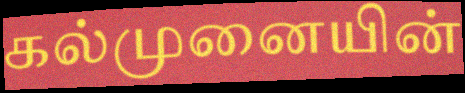
கல்முனையின்